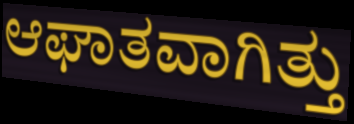
ಆಘಾತವಾಗಿತ್ತು